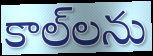
కాల్‌లను